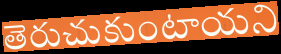
తెరుచుకుంటాయని